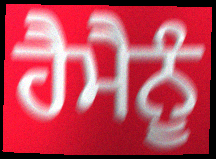
ਹੈਮੈਨੂੰ